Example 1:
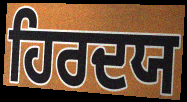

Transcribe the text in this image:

ਹਿਰਦਯ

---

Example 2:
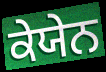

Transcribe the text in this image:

ਕੇਯੇਨ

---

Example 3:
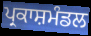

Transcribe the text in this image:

ਪ੍ਰਕਾਸ਼ਮੰਡਲ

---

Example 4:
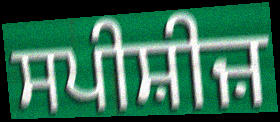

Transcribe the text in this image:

ਸਪੀਸ਼ੀਜ਼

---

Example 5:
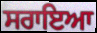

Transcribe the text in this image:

ਸਰਾਇਆ